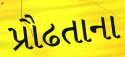
પ્રૌઢતાના